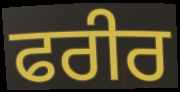
ਫਰੀਰ